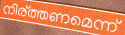
നിര്ത്തണമെന്ന്